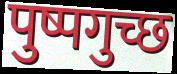
पुष्पगुच्छ